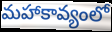
మహాకావ్యంలో